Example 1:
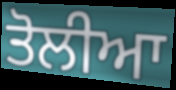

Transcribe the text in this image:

ਤੋਲੀਆ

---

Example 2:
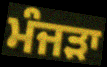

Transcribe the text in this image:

ਮੰਜੜਾ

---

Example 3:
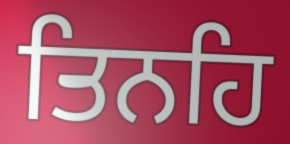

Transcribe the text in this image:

ਤਿਨਹਿ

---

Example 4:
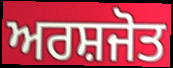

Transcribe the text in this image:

ਅਰਸ਼ਜੋਤ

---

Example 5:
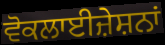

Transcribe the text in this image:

ਵੋਕਲਾਈਜ਼ੇਸ਼ਨਾਂ